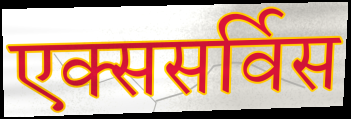
एक्ससर्विस